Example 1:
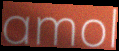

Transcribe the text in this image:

amol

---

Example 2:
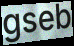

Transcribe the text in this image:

gseb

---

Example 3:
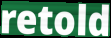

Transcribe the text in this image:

retold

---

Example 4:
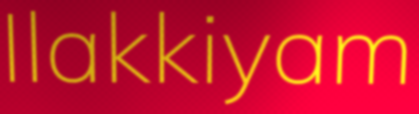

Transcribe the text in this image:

Ilakkiyam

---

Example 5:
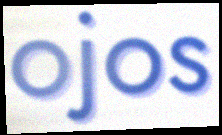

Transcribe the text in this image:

ojos